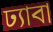
ঢ্যাবা